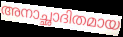
അനാച്ഛാദിതമായ